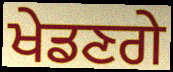
ਖੇਡਣਗੇ